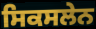
ਸਿਕਸਲੇਨ